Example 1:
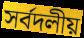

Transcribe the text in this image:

সৰ্বদলীয়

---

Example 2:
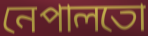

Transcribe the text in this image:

নেপালতো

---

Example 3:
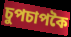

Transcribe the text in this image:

চুপচাপকৈ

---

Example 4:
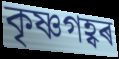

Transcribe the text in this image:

কৃষ্ণগহ্বৰ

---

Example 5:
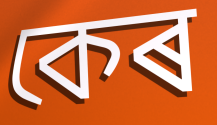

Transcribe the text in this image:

কেৰ